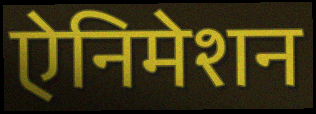
ऐनिमेशन